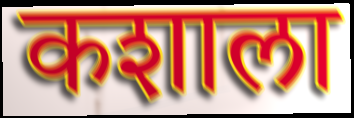
कशाला